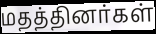
மதத்தினர்கள்